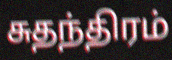
சுதந்திரம்